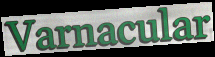
Varnacular